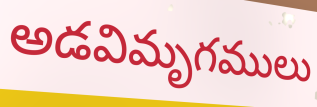
అడవిమృగములు